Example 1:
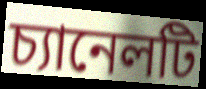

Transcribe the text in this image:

চ্যানেলটি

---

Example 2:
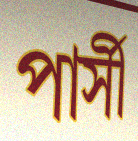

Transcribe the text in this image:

পার্সী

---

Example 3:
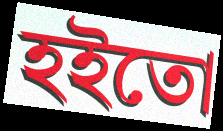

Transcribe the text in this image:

হইতো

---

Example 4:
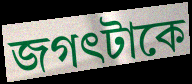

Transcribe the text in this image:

জগৎটাকে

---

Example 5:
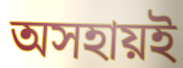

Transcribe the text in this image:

অসহায়ই